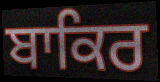
ਬਾਕਿਰ